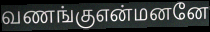
வணங்குஎன்மனனே